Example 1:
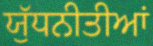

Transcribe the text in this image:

ਯੁੱਧਨੀਤੀਆਂ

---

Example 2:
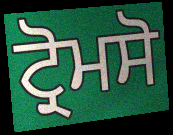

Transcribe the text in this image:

ਟ੍ਰੋਮਸੋ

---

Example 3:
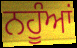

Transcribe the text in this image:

ਨਹੂੰਆਂ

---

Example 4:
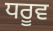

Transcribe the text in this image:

ਧਰੂਵ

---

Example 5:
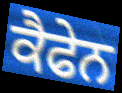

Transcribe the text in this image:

ਕੈਫੇਨ